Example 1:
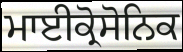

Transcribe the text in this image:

ਮਾਈਕ੍ਰੋਸੋਨਿਕ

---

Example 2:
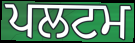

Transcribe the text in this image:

ਪਲਟਮ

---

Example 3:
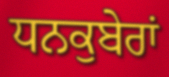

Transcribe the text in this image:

ਧਨਕੁਬੇਰਾਂ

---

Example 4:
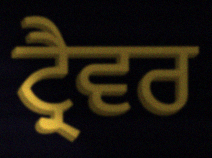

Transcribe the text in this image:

ਟ੍ਰੈਵਰ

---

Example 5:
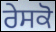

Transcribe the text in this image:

ਰੇਸਕੋ